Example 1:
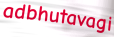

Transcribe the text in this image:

adbhutavagi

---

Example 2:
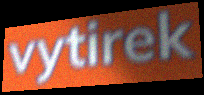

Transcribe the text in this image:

vytirek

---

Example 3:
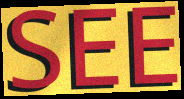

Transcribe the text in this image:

SEE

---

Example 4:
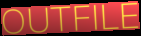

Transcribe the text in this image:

OUTFILE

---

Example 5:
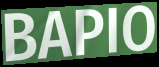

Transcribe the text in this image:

BAPIO